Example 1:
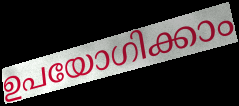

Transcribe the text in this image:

ഉപയോഗിക്കാം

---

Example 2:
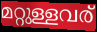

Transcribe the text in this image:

മറ്റുള്ളവര്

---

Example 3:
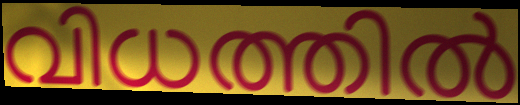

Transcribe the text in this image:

വിധത്തിൽ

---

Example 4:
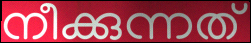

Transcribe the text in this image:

നീക്കുന്നത്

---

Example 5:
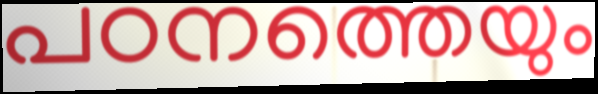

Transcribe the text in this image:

പഠനത്തെയും